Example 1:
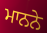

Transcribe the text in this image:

ਮਾਨਨੇ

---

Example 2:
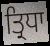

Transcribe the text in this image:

ਤ੍ਰਿਧਾ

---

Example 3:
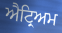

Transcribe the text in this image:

ਐਟ੍ਰਿਅਮ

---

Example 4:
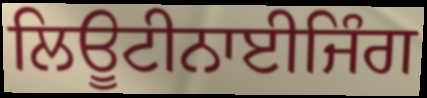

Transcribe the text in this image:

ਲਿਊਟੀਨਾਈਜਿੰਗ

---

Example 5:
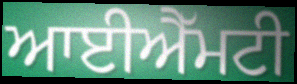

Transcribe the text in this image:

ਆਈਐੱਮਟੀ